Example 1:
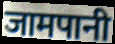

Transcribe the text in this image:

जामपानी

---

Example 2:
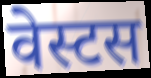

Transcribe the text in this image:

वेस्टस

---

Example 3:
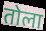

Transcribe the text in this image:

तोला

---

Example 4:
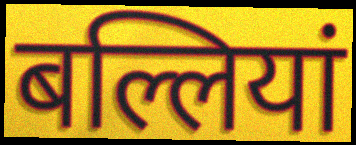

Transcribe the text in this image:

बल्लियां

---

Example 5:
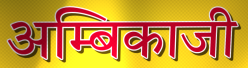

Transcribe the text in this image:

अम्बिकाजी